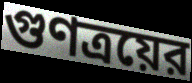
গুণত্রয়ের